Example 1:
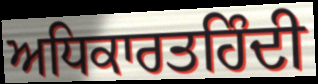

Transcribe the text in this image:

ਅਧਿਕਾਰਤਹਿੰਦੀ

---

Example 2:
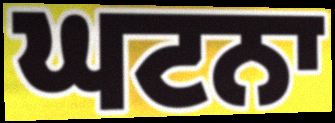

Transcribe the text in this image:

ਘਟਨਾ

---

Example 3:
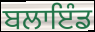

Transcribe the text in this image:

ਬਲਾਇੰਡ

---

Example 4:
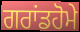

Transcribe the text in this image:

ਗਰਾਂਡਹੋਮੇ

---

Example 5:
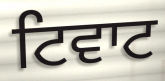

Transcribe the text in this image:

ਟਿਵਾਟ